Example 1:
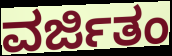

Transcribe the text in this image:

ವರ್ಜಿತಂ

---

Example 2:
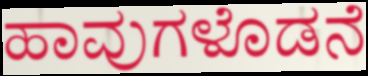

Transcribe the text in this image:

ಹಾವುಗಳೊಡನೆ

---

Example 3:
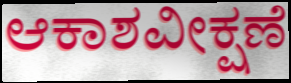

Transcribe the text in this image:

ಆಕಾಶವೀಕ್ಷಣೆ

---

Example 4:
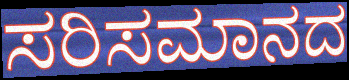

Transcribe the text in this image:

ಸರಿಸಮಾನದ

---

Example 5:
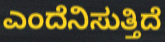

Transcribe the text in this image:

ಎಂದೆನಿಸುತ್ತಿದೆ